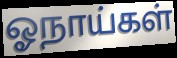
ஓநாய்கள்